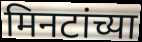
मिनटांच्या